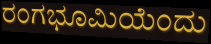
ರಂಗಭೂಮಿಯೆಂದು